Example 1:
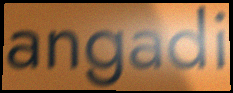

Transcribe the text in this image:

angadi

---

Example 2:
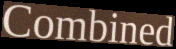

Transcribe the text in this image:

Combined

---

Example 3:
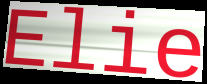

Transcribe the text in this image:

Elie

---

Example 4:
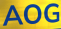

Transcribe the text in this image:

AOG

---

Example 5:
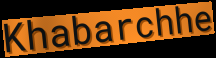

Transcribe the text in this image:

Khabarchhe